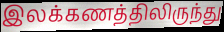
இலக்கணத்திலிருந்து